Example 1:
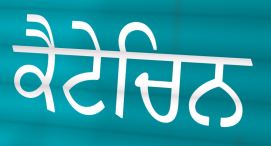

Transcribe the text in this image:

ਕੈਟੇਚਿਨ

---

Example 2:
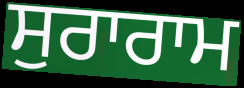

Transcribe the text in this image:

ਸੁਰਾਰਾਮ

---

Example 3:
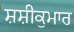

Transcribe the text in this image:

ਸ਼ਸ਼ੀਕੁਮਾਰ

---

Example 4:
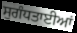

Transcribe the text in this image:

ਸੁਗੰਧਤਾਈਆਂ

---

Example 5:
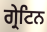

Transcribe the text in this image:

ਗ੍ਰੇਟਿਨ